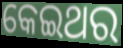
କେଇଥର